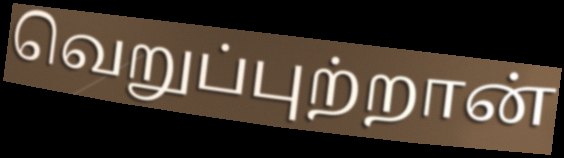
வெறுப்புற்றான்